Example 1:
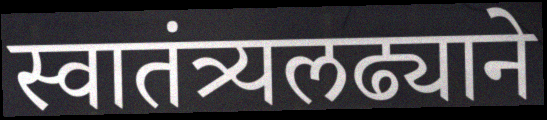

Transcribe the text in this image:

स्वातंत्र्यलढ्याने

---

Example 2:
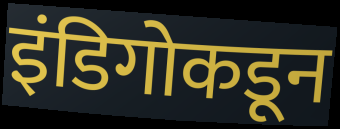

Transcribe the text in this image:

इंडिगोकडून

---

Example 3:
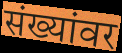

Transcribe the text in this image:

संख्यांवर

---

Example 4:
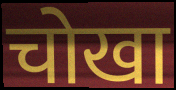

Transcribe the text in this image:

चोखा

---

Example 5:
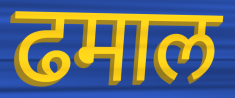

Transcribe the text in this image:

ढमाल